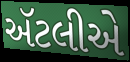
ઍટલીએ